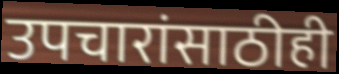
उपचारांसाठीही